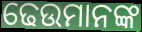
ଢେଉମାନଙ୍କ